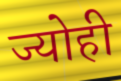
ज्योही